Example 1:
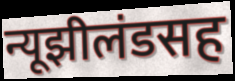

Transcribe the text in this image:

न्यूझीलंडसह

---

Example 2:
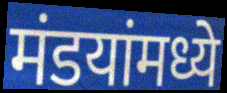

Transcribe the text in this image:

मंडयांमध्ये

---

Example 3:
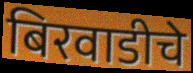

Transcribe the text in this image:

बिरवाडीचे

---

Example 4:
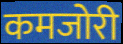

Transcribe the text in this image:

कमजोरी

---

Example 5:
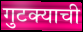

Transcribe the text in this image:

गुटक्याची